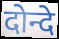
दोन्दे